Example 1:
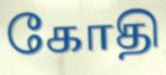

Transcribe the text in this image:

கோதி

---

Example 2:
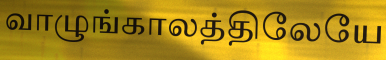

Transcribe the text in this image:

வாழுங்காலத்திலேயே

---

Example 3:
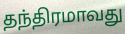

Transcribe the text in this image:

தந்திரமாவது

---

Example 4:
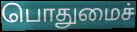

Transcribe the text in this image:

பொதுமைச்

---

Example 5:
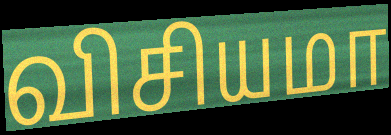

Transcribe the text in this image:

விசியமா